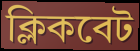
ক্লিকবেট